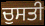
ਚੁਸਤੀ